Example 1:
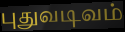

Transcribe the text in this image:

புதுவடிவம்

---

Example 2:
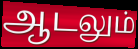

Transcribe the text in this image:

ஆடலும்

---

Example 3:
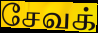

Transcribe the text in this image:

சேவக்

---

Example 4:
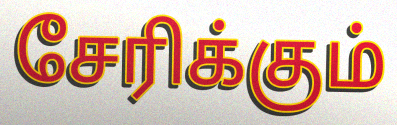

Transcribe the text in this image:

சேரிக்கும்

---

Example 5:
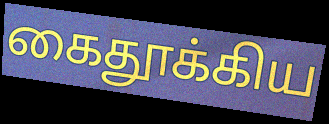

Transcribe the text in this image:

கைதூக்கிய